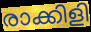
രാക്കിളി